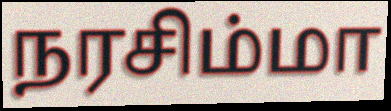
நரசிம்மா